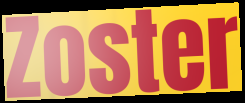
Zoster